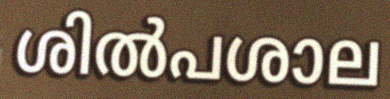
ശിൽപശാല